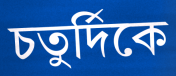
চতুর্দিকে